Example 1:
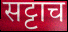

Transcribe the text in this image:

सट्टाच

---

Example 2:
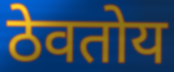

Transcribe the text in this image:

ठेवतोय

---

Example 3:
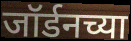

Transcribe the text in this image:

जॉर्डनच्या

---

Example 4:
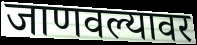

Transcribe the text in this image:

जाणवल्यावर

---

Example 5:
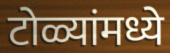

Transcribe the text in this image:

टोळ्यांमध्ये